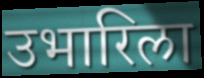
उभारिला